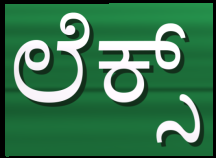
ಲೆಕ್ಸ್